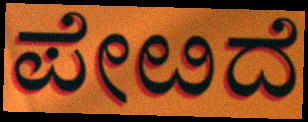
ಪೇೞದೆ